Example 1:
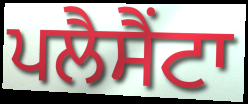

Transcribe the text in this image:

ਪਲੈਸੈਂਟਾ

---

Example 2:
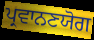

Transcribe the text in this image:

ਪ੍ਰਵਾਨਣਯੋਗ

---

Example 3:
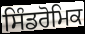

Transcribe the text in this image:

ਸਿੰਡਰੋਮਿਕ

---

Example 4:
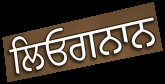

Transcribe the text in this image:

ਲਿਓਗਨਾਨ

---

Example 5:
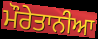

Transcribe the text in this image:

ਮੌਰੇਤਾਨੀਆ